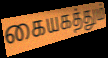
கையகத்தும்